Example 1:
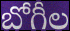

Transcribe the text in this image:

బోగీల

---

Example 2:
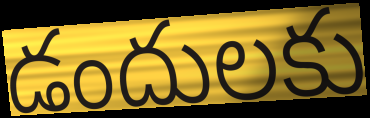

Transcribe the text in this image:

డందులకు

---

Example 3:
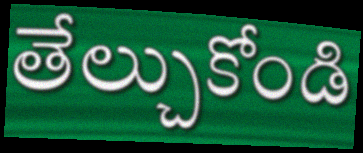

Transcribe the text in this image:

తేల్చుకోండి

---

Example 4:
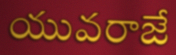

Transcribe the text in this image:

యువరాజే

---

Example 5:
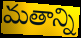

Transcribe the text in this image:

మతాన్ని